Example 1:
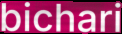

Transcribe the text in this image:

bichari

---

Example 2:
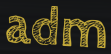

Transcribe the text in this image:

adm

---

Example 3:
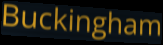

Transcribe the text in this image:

Buckingham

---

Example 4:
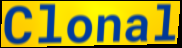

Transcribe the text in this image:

Clonal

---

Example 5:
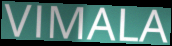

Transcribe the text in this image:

VIMALA